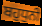
ਬਹੁਧੁਨੀ